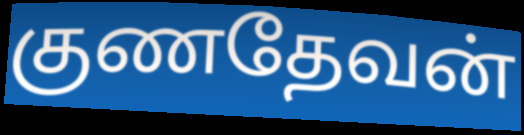
குணதேவன்